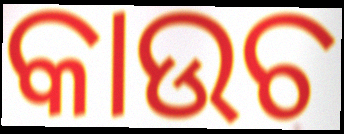
କାଉଚ